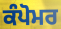
ਕੰਪੋਮਰ